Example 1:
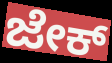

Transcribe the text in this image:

ಜೇಕ್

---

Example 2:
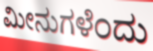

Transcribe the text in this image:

ಮೀನುಗಳೆಂದು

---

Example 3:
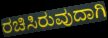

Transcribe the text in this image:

ರಚಿಸಿರುವುದಾಗಿ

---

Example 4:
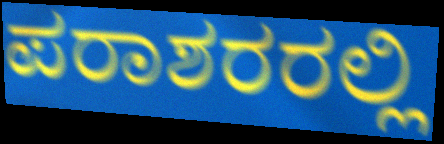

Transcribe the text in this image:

ಪರಾಶರರಲ್ಲಿ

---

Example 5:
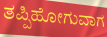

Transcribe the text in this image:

ತಪ್ಪಿಹೋಗುವಾಗ